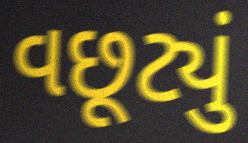
વછૂટ્યું